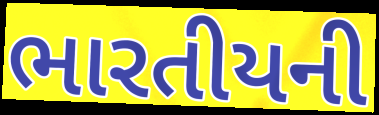
ભારતીયની